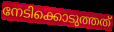
നേടിക്കൊടുത്തത്